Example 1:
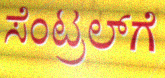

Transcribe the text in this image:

ಸೆಂಟ್ರಲ್‌ಗೆ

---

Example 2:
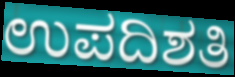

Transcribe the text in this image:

ಉಪದಿಶತಿ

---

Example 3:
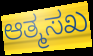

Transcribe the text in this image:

ಆತ್ಮಸಖ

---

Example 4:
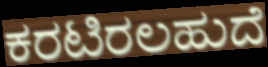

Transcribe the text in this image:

ಕರಟಿರಲಹುದೆ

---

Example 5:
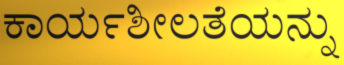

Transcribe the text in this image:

ಕಾರ್ಯಶೀಲತೆಯನ್ನು